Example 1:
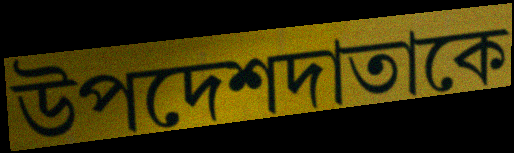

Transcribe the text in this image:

উপদেশদাতাকে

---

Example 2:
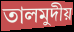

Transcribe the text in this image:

তালমুদীয়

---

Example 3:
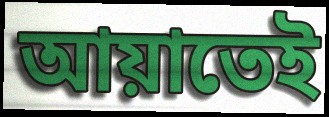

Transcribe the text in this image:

আয়াতেই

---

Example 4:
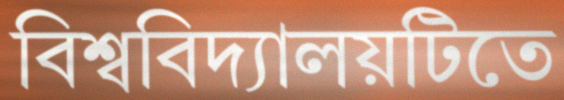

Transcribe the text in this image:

বিশ্ববিদ্যালয়টিতে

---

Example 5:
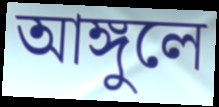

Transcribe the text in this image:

আঙ্গুলে